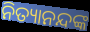
ନିତ୍ୟାନନ୍ଦଙ୍କ